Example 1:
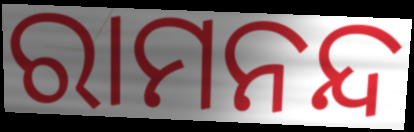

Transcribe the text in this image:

ରାମନନ୍ଦ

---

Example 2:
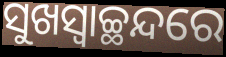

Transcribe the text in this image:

ସୁଖସ୍ୱାଚ୍ଛନ୍ଦରେ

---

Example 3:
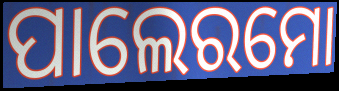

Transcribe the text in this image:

ପାଲେରମୋ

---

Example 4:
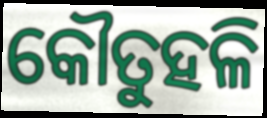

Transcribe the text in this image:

କୌତୁହଳି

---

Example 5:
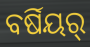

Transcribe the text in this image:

ବର୍ଷିୟର୍